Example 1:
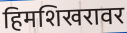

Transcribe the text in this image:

हिमशिखरावर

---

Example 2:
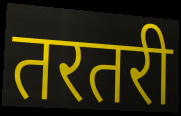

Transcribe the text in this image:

तरतरी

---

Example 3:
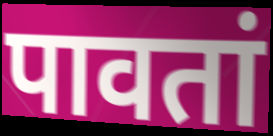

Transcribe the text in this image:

पावतां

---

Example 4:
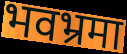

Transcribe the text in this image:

भवभ्रमा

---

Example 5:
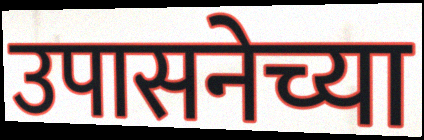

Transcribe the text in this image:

उपासनेच्या